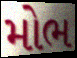
મોભ